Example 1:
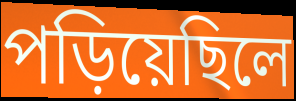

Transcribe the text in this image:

পড়িয়েছিলে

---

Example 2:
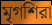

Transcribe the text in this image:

মৃগশিরা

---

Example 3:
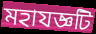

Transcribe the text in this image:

মহাযজ্ঞটি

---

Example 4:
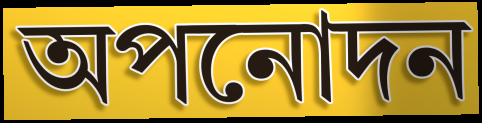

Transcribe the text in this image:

অপনোদন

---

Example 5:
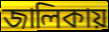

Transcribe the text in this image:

জালিকায়